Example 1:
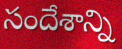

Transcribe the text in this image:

సందేశాన్ని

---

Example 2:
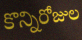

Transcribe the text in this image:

కొన్నిరోజుల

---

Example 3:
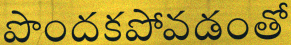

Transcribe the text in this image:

పొందకపోవడంతో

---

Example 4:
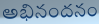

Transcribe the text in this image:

అభినందనం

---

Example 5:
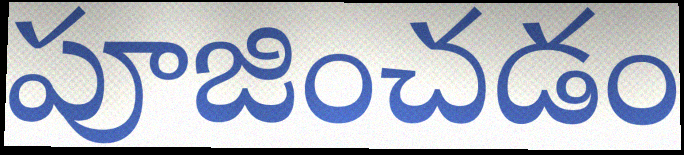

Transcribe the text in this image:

పూజించడం